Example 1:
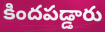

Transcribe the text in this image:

కిందపడ్డారు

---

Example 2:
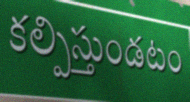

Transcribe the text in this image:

కల్పిస్తుండటం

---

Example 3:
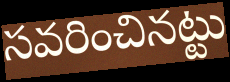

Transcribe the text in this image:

సవరించినట్టు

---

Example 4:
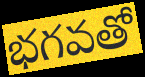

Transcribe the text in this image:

భగవతో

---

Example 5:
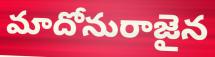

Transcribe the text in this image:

మాదోనురాజైన